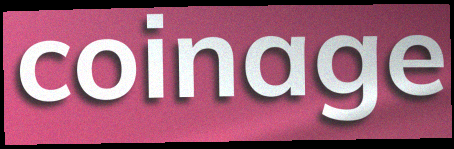
coinage